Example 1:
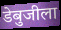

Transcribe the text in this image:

डेबुजीला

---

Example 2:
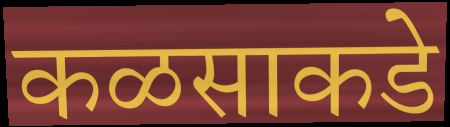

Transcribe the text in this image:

कळसाकडे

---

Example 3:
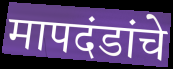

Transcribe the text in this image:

मापदंडांचे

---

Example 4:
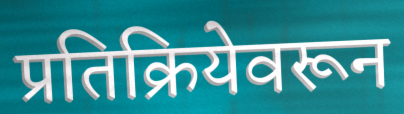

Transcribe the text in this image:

प्रतिक्रियेवरून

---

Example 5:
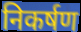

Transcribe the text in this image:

निकर्षण